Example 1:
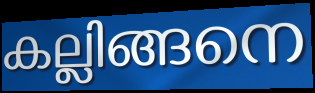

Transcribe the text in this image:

കല്ലിങ്ങനെ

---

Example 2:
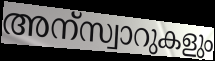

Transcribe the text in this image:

അന്സ്വാറുകളും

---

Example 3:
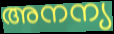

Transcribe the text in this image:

അനന്യ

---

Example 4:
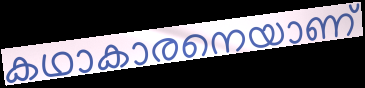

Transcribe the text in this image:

കഥാകാരനെയാണ്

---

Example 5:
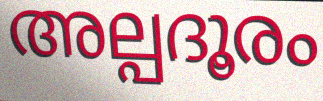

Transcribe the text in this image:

അല്പദൂരം